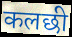
कलछी